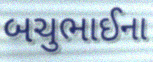
બચુભાઈના